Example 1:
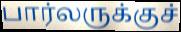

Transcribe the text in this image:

பார்லருக்குச்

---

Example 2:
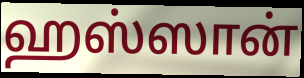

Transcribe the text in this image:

ஹஸ்ஸான்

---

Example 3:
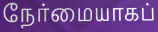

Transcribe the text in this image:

நேர்மையாகப்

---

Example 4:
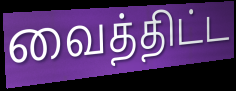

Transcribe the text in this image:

வைத்திட்ட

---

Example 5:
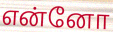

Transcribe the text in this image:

என்னோ